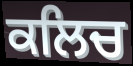
ਕਲਿਚ